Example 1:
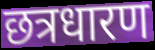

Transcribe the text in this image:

छत्रधारण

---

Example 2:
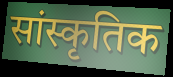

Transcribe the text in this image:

सांस्कृतिक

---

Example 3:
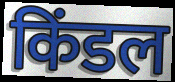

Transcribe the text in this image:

किंडल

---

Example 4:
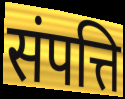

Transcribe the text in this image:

संपत्ति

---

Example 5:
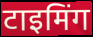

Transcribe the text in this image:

टाइमिंग